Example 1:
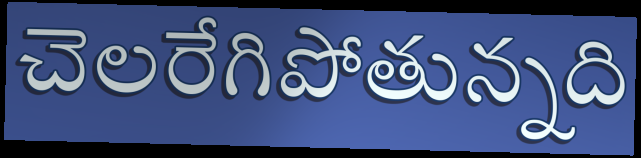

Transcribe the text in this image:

చెలరేగిపోతున్నది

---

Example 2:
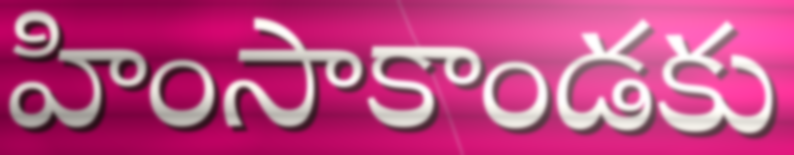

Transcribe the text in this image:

హింసాకాండకు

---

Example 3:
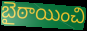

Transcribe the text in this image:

బైఠాయించి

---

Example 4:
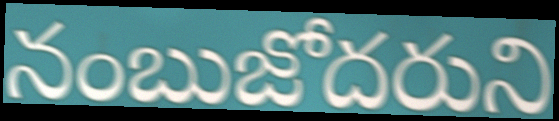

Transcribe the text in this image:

నంబుజోదరుని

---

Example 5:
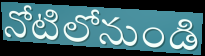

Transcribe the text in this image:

నోటిలోనుండి